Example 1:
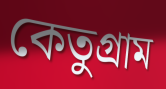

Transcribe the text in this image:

কেতুগ্রাম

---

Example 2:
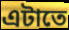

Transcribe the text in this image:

এটাতে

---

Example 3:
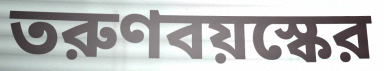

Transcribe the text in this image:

তরুণবয়স্কের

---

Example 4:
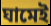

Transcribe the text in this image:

ঘামেই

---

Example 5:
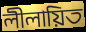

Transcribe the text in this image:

লীলায়িত